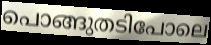
പൊങ്ങുതടിപോലെ